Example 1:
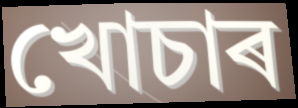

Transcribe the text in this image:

খোচাৰ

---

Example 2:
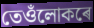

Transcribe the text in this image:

তেওঁলোকৰে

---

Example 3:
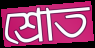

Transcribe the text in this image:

শ্ৰোত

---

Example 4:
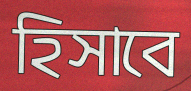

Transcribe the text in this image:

হিসাবে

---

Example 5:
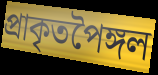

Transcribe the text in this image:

প্ৰাকৃতপৈঙ্গল